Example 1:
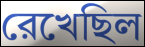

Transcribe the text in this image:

রেখেছিল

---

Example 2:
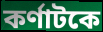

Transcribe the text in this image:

কর্ণাটকে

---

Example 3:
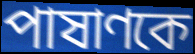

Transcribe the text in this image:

পাষাণকে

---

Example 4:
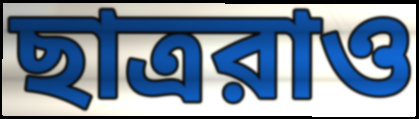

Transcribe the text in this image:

ছাত্ররাও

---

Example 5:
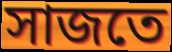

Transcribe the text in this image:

সাজতে